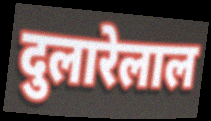
दुलारेलाल